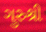
ગુરુશ્રી